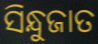
ସିନ୍ଧୁଜାତ